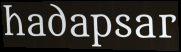
hadapsar